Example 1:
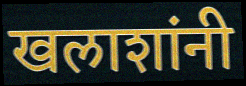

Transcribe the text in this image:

खलाशांनी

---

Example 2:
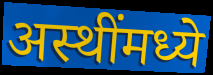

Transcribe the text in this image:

अस्थींमध्ये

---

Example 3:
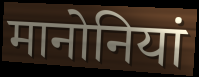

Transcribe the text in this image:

मानोनियां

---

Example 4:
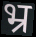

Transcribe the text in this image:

भ्र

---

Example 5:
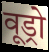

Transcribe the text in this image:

वूड्रो